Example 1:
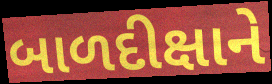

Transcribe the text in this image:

બાળદીક્ષાને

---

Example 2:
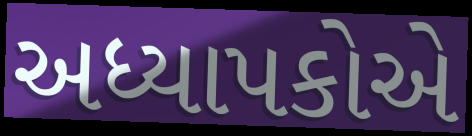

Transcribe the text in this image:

અધ્યાપકોએ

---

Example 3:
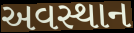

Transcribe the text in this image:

અવસ્થાન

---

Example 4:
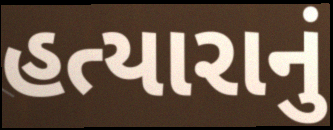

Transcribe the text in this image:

હત્યારાનું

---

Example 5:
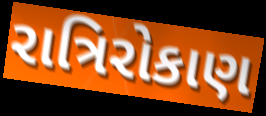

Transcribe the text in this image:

રાત્રિરોકાણ